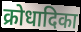
क्रोधादिका